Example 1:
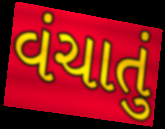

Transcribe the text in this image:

વંચાતું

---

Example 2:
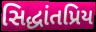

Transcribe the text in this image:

સિદ્ધાંતપ્રિય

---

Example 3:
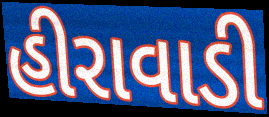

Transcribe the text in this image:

હીરાવાડી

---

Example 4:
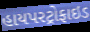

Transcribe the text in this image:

હાયપરટ્રોફાઇડ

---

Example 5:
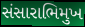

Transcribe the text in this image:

સંસારાભિમુખ